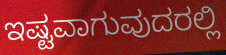
ಇಷ್ಟವಾಗುವುದರಲ್ಲಿ